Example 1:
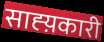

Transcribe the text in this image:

साह्य़कारी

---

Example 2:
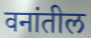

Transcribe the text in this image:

वनांतील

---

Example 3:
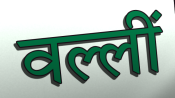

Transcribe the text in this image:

वल्लीं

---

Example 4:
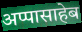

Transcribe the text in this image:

अप्पासाहेब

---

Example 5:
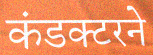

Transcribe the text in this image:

कंडक्टरने